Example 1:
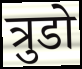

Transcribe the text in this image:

त्रुडो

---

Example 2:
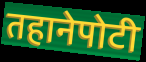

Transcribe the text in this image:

तहानेपोटी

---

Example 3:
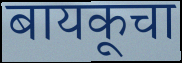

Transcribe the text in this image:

बायकूचा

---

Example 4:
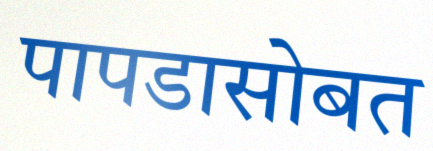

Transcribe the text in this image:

पापडासोबत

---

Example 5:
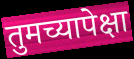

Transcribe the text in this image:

तुमच्यापेक्षा